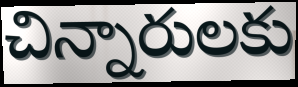
చిన్నారులకు